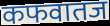
कफवातज